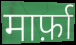
मार्फ़ा